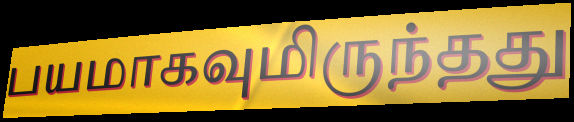
பயமாகவுமிருந்தது